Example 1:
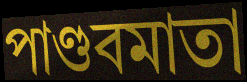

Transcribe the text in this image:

পাণ্ডবমাতা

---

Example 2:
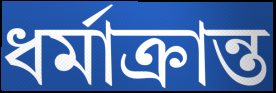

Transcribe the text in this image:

ধর্মাক্রান্ত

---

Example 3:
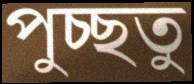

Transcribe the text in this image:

পুচ্ছতু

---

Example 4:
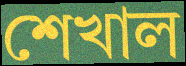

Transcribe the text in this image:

শেখাল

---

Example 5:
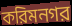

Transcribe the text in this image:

করিমনগর